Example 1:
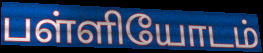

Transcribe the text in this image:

பள்ளியோடம்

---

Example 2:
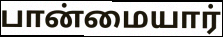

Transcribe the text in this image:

பான்மையார்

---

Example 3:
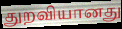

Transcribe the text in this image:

துறவியானது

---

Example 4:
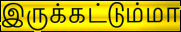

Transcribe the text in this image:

இருக்கட்டும்மா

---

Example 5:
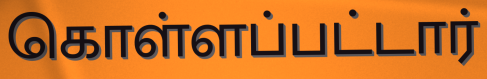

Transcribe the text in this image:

கொள்ளப்பட்டார்